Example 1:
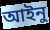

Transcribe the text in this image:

আইনু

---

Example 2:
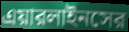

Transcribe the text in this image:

এয়ারলাইনসের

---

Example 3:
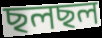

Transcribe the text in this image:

ছলছল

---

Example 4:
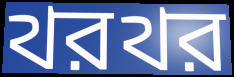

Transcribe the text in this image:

থরথর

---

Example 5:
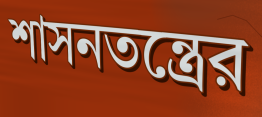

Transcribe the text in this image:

শাসনতন্ত্রের